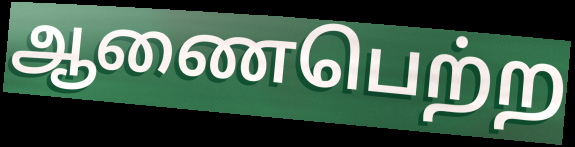
ஆணைபெற்ற